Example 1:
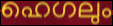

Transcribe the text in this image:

ഹെഗലും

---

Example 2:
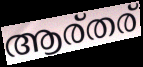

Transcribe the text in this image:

ആര്തര്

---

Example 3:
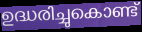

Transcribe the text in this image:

ഉദ്ധരിച്ചുകൊണ്ട്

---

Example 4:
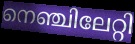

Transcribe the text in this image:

നെഞ്ചിലേറ്റി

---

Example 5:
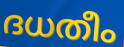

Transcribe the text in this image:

ദധതീം